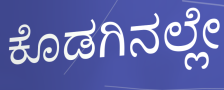
ಕೊಡಗಿನಲ್ಲೇ